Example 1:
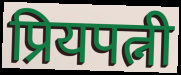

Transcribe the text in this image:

प्रियपत्नी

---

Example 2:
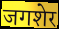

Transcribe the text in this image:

जगशेर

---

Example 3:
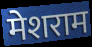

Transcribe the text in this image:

मेशराम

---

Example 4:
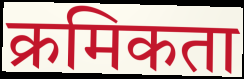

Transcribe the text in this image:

क्रमिकता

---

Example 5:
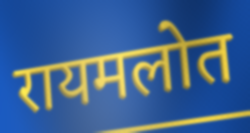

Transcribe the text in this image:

रायमलोत